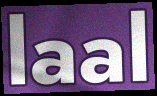
laal